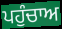
ਪਹੁੰਚਾਅ